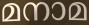
മനാമ